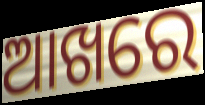
ଆଖରେ